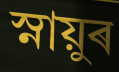
স্নায়ুৰ